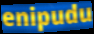
enipudu